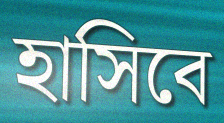
হাসিবে